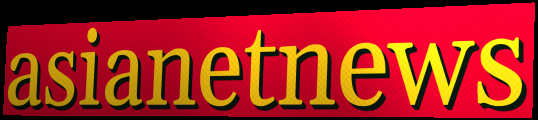
asianetnews